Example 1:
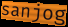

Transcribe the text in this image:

sanjog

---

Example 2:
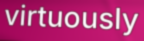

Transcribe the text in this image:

virtuously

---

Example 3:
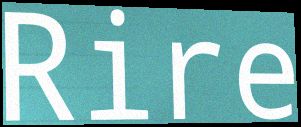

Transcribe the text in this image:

Rire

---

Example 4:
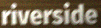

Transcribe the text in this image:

riverside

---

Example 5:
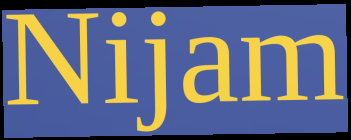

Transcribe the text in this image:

Nijam